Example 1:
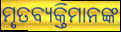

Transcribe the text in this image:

ମୃତବ୍ୟକ୍ତିମାନଙ୍କ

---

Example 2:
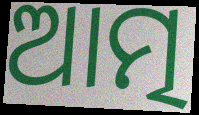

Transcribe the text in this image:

ଆତ୍ମ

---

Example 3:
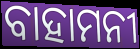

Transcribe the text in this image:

ବାହାମନୀ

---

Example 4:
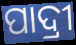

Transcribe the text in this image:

ପାଦ୍ରୀ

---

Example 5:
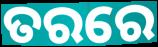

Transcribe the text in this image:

ତରରେ